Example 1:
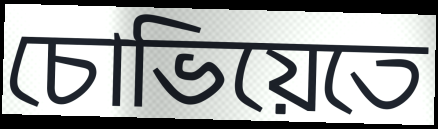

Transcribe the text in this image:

চোভিয়েতে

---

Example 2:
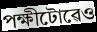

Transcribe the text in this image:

পক্ষীটোৱেও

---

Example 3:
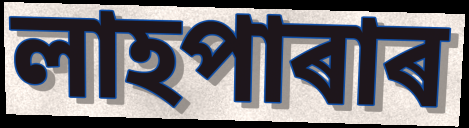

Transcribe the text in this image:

লাহপাৰাৰ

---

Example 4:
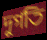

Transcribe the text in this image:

দুৰ্গতি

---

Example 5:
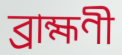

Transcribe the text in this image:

ব্ৰাহ্মণী